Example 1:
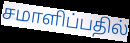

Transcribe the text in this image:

சமாளிப்பதில்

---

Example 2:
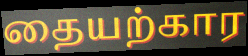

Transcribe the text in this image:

தையற்கார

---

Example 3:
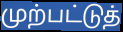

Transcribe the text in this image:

முற்பட்டுத்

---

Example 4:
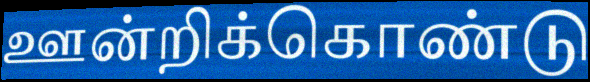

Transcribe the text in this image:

ஊன்றிக்கொண்டு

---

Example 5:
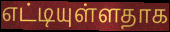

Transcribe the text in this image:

எட்டியுள்ளதாக